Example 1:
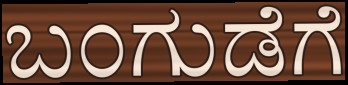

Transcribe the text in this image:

ಬಂಗುಡೆಗೆ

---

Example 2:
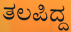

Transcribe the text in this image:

ತಲಪಿದ್ದ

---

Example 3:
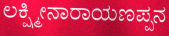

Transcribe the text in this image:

ಲಕ್ಷ್ಮೀನಾರಾಯಣಪ್ಪನ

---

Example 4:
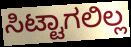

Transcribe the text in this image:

ಸಿಟ್ಟಾಗಲಿಲ್ಲ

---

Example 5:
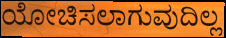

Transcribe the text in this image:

ಯೋಚಿಸಲಾಗುವುದಿಲ್ಲ